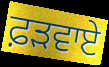
ਫ਼ੜਵਾਏ